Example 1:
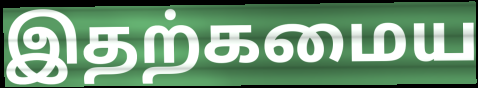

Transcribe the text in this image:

இதற்கமைய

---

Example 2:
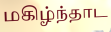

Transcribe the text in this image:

மகிழ்ந்தாட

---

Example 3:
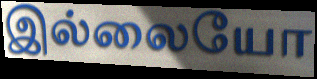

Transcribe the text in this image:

இல்லையோ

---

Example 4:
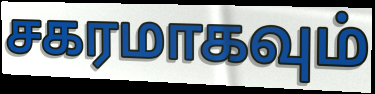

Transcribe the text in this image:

சகரமாகவும்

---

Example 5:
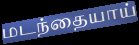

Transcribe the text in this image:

மடந்தையாய்